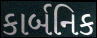
કાર્બનિક